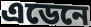
এডেনে